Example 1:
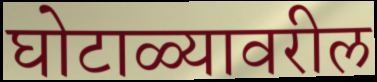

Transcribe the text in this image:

घोटाळ्यावरील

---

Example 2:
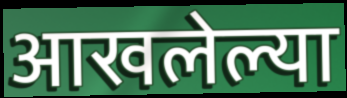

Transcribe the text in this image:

आखलेल्या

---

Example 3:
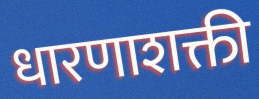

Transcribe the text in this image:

धारणाशक्ती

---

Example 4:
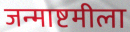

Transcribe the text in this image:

जन्माष्टमीला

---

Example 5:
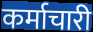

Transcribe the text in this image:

कर्माचारी